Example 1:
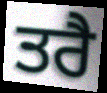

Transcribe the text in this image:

ਤਰੈ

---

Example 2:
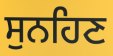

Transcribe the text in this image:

ਸੁਨਹਿਣ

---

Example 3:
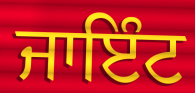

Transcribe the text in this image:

ਜਾਇੰਟ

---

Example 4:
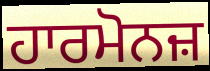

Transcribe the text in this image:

ਹਾਰਮੋਨਜ਼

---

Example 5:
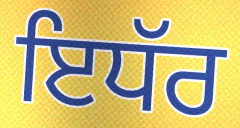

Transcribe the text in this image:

ਇਧੱਰ